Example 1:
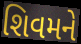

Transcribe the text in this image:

શિવમને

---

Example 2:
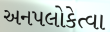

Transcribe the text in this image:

અનપલોકેત્વા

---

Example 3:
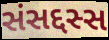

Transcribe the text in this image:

સંસદ્દસ્સ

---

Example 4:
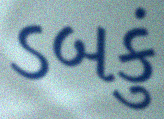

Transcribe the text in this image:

ડબકું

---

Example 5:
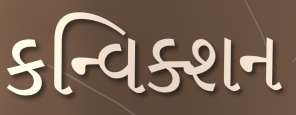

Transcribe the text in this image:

કન્વિક્શન